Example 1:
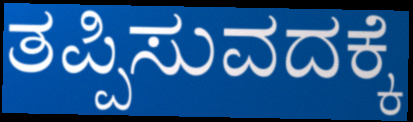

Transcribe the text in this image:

ತಪ್ಪಿಸುವದಕ್ಕೆ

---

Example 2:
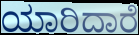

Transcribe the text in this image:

ಯಾರಿದಾರೆ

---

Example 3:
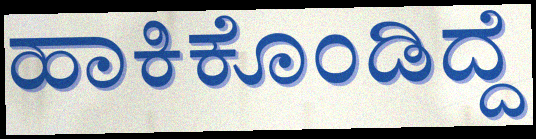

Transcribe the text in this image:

ಹಾಕಿಕೊಂಡಿದ್ದೆ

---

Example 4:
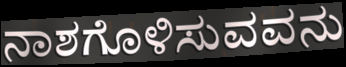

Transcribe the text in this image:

ನಾಶಗೊಳಿಸುವವನು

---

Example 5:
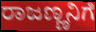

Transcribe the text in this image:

ರಾಜಣ್ಣನಿಗೆ